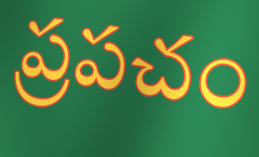
ప్రపచం